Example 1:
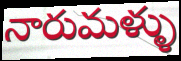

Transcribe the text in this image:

నారుమళ్ళు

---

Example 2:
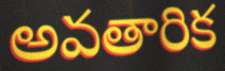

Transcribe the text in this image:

అవతారిక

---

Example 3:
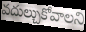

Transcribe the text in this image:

వదుల్చుకోవాలని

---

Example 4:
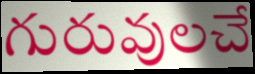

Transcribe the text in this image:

గురువులచే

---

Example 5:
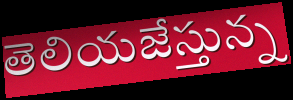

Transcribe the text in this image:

తెలియజేస్తున్న